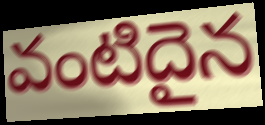
వంటిదైన